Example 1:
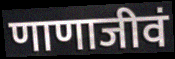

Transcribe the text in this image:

णाणाजीवं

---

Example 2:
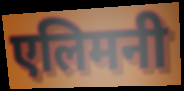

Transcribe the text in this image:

एलिमनी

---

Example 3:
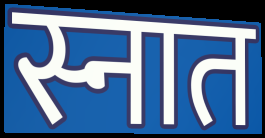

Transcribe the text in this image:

स्नात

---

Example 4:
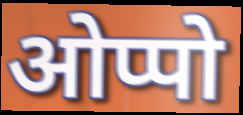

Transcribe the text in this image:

ओप्पो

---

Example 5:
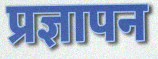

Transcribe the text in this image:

प्रज्ञापन